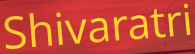
Shivaratri